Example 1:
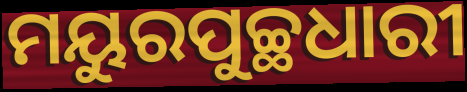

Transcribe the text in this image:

ମୟୁରପୁଚ୍ଛଧାରୀ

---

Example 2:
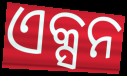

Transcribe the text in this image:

ଏକ୍ସନ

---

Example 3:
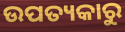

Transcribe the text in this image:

ଉପତ୍ୟକାରୁ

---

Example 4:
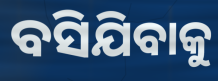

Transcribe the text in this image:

ବସିଯିବାକୁ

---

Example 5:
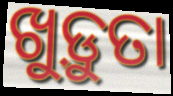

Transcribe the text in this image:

ଖୁଡ଼ୁତା